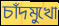
চাঁদমুখো